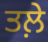
ਤਲ਼ੇ